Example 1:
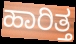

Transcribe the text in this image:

ಹಾರಿತ್ತ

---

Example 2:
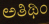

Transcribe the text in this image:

ಅತಿಥಿಂ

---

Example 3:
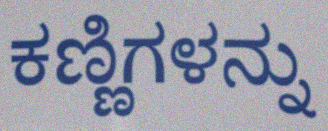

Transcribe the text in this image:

ಕಣ್ಣಿಗಳನ್ನು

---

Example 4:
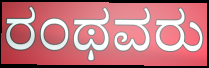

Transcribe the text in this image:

ರಂಥವರು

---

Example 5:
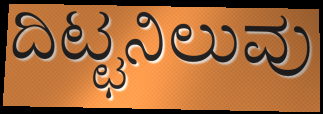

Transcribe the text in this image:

ದಿಟ್ಟನಿಲುವು